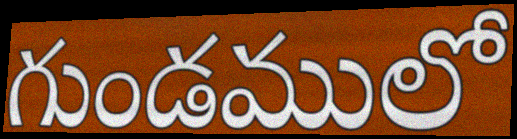
గుండములో